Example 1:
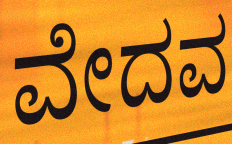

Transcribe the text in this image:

ವೇದವ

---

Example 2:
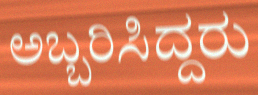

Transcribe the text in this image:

ಅಬ್ಬರಿಸಿದ್ದರು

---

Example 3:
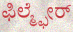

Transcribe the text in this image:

ಫಿಲ್ಮ್ಫೇರ್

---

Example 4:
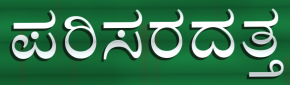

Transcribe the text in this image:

ಪರಿಸರದತ್ತ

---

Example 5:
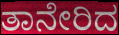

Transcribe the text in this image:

ತಾನೇರಿದ